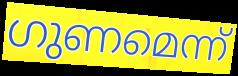
ഗുണമെന്ന്